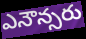
ఎనౌన్సరు